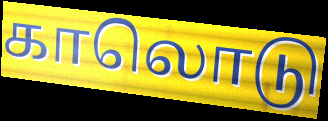
காலொடு